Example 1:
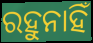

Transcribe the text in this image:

ରହୁନାହିଁ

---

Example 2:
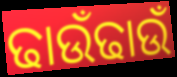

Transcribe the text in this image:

ଢାଉଁଢାଉଁ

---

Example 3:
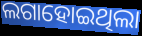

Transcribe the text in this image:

ଲଗାହୋଇଥିଲା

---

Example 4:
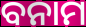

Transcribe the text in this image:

ବନାମ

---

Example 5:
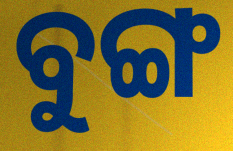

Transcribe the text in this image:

ବୁଙ୍ଗ